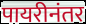
पायरीनंतर